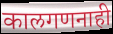
कालगणनाही